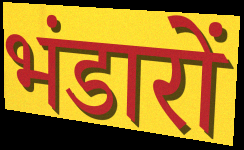
भंडारों